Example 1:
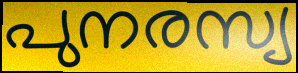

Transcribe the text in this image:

പുനരസ്യ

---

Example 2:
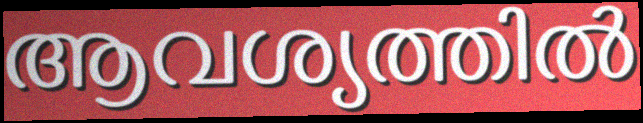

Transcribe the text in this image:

ആവശ്യത്തിൽ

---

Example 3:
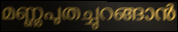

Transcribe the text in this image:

മണ്ണുപുതച്ചുറങ്ങാൻ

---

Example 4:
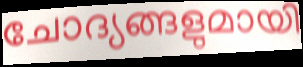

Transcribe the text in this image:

ചോദ്യങ്ങളുമായി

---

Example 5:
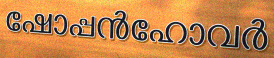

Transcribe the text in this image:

ഷോപ്പൻഹോവർ